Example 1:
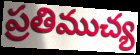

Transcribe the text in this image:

ప్రతిముచ్య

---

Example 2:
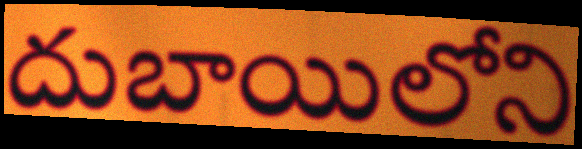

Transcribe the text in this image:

దుబాయిలోని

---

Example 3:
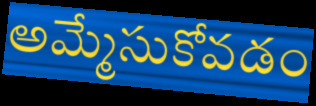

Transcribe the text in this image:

అమ్మేసుకోవడం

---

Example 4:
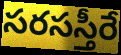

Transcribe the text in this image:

సరసస్తీరే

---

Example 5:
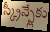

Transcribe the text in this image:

స్క్రీన్ప్లేకు